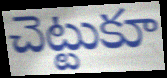
చెట్టుకూ